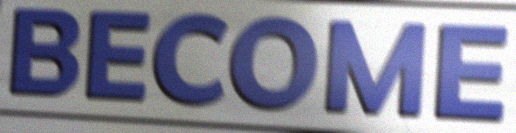
BECOME